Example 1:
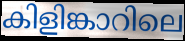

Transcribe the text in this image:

കിളിങ്കാറിലെ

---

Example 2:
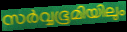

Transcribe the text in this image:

സർവ്വഭൂമിയിലും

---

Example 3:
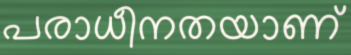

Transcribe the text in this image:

പരാധീനതയാണ്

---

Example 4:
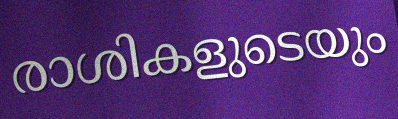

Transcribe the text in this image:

രാശികളുടെയും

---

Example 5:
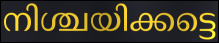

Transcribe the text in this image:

നിശ്ചയിക്കട്ടെ